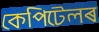
কেপিটেলৰ